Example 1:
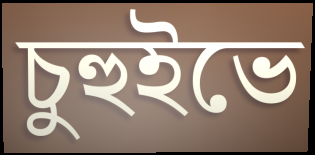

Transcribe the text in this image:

চুহুইভে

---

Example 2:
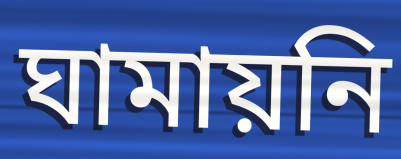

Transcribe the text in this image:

ঘামায়নি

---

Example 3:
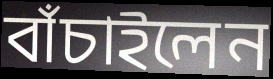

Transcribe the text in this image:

বাঁচাইলেন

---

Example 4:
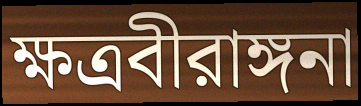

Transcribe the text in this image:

ক্ষত্রবীরাঙ্গনা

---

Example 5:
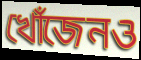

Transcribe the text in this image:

খোঁজেনও